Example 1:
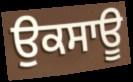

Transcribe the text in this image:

ਉਕਸਾਊ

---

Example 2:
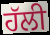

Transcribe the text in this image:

ਹੱਲੀ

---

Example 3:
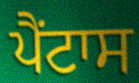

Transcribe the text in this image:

ਪੈਂਟਾਸ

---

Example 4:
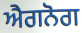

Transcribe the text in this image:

ਐਗਨੋਗ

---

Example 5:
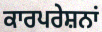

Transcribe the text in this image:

ਕਾਰਪਰੇਸ਼ਨਾਂ